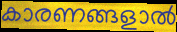
കാരണങ്ങളാൽ